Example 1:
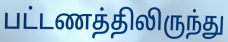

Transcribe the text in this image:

பட்டணத்திலிருந்து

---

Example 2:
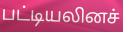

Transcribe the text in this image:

பட்டியலினச்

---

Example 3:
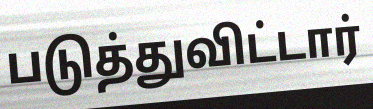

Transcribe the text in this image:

படுத்துவிட்டார்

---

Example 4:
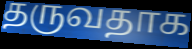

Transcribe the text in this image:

தருவதாக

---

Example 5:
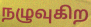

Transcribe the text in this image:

நழுவுகிற